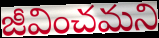
జీవించమని